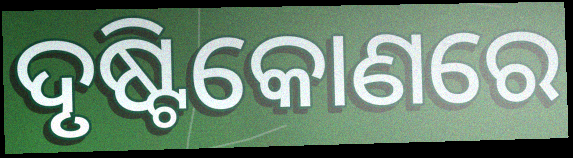
ଦୃଷ୍ଟିକୋଣରେ